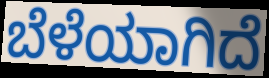
ಬೆಳೆಯಾಗಿದೆ